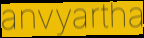
anvyartha